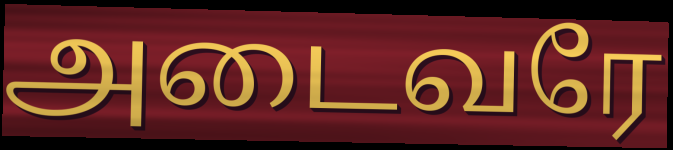
அடைவரே